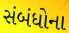
સંબંધોના